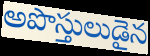
అపొస్తులుడైన